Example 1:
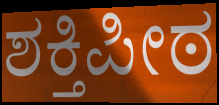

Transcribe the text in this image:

ಶಕ್ತಿಪೀಠ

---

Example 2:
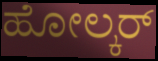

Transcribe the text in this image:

ಹೋಲ್ಕರ್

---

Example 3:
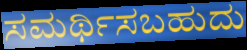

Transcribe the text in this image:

ಸಮರ್ಥಿಸಬಹುದು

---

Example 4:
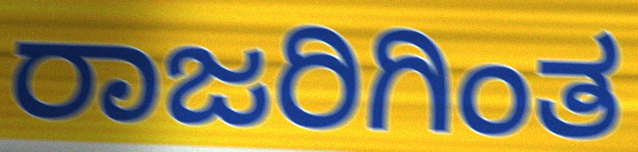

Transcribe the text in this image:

ರಾಜರಿಗಿಂತ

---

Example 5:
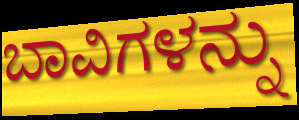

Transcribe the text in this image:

ಬಾವಿಗಳನ್ನು